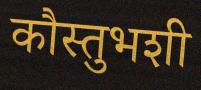
कौस्तुभशी